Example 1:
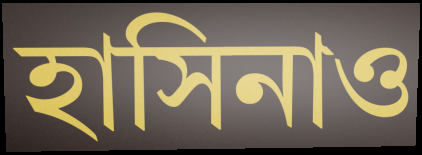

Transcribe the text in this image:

হাসিনাও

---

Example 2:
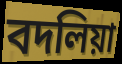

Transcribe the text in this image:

বদলিয়া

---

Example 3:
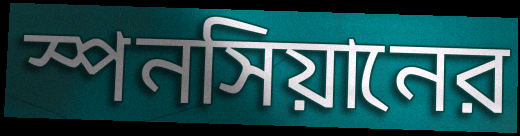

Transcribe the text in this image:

স্পনসিয়ানের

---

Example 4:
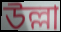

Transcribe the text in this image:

উল্লা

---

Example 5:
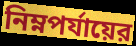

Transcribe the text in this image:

নিম্নপর্যায়ের